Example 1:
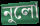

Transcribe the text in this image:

নুলো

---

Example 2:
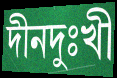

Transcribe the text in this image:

দীনদুঃখী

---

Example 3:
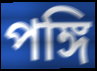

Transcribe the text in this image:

পঙ্গি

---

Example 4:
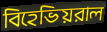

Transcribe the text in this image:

বিহেভিয়রাল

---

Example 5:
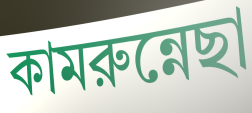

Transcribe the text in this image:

কামরুন্নেছা